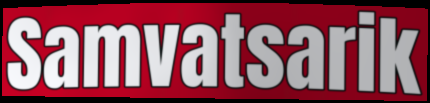
Samvatsarik